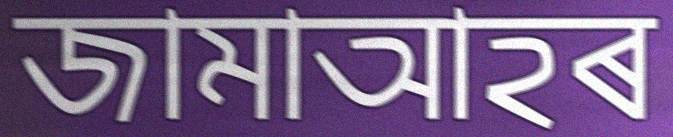
জামাআহৰ